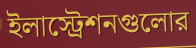
ইলাস্ট্রেশনগুলোর